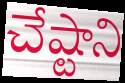
చేష్టాని